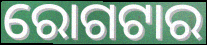
ରୋଗଟାର